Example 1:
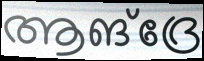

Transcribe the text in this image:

ആങ്ദ്രേ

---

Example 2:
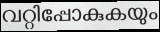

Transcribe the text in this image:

വറ്റിപ്പോകുകയും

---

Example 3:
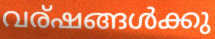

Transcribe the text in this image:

വര്ഷങ്ങൾക്കു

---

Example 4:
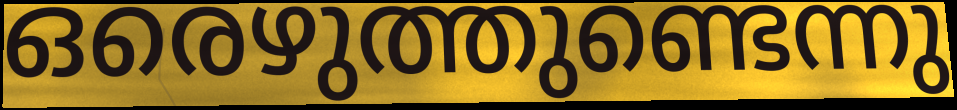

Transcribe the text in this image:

ഒരെഴുത്തുണ്ടെന്നു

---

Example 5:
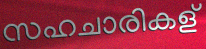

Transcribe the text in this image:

സഹചാരികള്